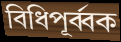
বিধিপূর্ব্বক